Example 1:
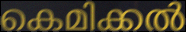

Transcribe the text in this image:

കെമിക്കൽ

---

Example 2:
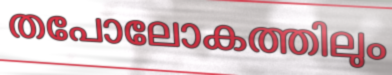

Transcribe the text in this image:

തപോലോകത്തിലും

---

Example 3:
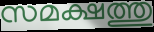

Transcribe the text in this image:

സമക്ഷത്തു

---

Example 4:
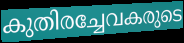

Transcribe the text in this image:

കുതിരച്ചേവകരുടെ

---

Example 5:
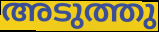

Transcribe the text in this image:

അടുത്തു